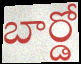
బార్డో